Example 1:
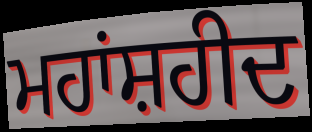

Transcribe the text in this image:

ਮਹਾਂਸ਼ਹੀਦ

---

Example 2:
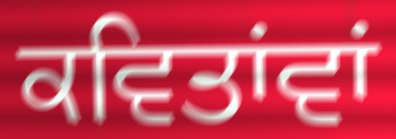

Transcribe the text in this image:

ਕਵਿਤਾਂਵਾਂ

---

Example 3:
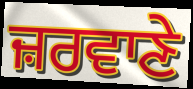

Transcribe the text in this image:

ਜ਼ਰਵਾਣੇ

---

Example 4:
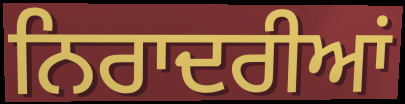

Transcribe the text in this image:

ਨਿਰਾਦਰੀਆਂ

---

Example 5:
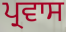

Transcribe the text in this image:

ਪ੍ਰਵਾਸ